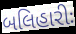
બલિહારીઃ